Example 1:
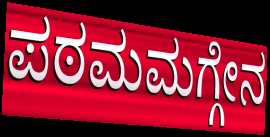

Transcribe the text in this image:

ಪಠಮಮಗ್ಗೇನ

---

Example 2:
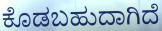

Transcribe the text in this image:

ಕೊಡಬಹುದಾಗಿದೆ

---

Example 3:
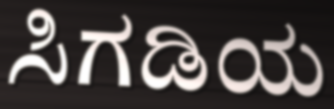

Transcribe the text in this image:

ಸಿಗಡಿಯ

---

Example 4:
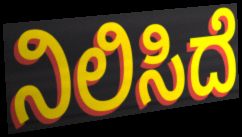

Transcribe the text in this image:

ನಿಲಿಸಿದೆ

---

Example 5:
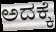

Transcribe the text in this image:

ಅದಕ್ಕೆ